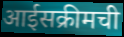
आईसक्रीमची